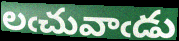
లఁచువాఁడు